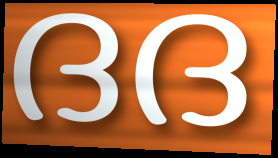
ദദ